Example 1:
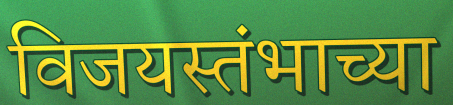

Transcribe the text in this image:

विजयस्तंभाच्या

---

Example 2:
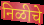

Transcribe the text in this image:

निळीचे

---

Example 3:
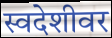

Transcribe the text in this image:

स्वदेशीवर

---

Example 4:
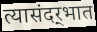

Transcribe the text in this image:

त्यासंदर्भात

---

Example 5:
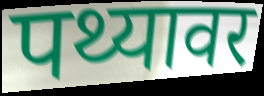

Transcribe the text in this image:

पथ्यावर